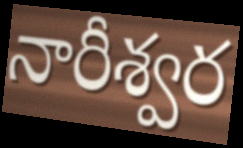
నారీశ్వర